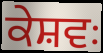
ਕੇਸ਼ਵਃ